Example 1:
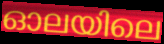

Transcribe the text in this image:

ഓലയിലെ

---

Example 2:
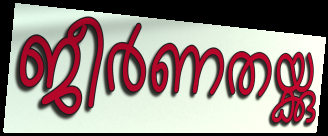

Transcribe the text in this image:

ജീർണതയ്ക്കു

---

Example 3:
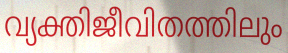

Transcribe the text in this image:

വ്യക്തിജീവിതത്തിലും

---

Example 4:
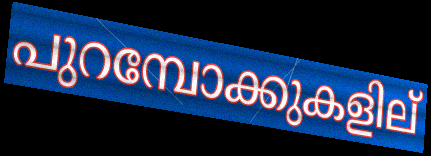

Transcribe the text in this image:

പുറമ്പോക്കുകളില്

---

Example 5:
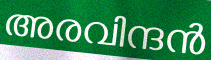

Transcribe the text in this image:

അരവിന്ദൻ